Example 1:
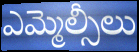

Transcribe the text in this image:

ఎమ్మెల్సీలు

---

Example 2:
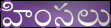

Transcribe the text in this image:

హింసలు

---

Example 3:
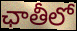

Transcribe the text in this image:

ఛాతీలో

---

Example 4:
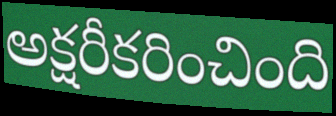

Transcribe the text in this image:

అక్షరీకరించింది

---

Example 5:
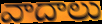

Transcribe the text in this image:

వాదాలు